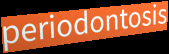
periodontosis